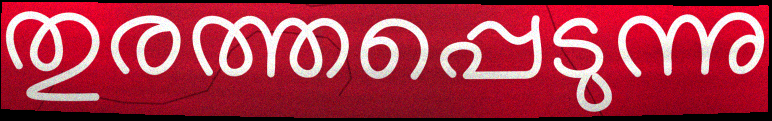
തുരത്തപ്പെടുന്നു